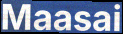
Maasai